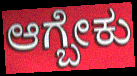
ಆಗ್ಬೇಕು